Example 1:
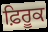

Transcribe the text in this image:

ਫ਼ਿਰੂਕ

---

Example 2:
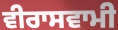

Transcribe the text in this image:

ਵੀਰਾਸਵਾਮੀ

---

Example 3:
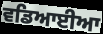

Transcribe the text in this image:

ਵਡਿਆਈਆ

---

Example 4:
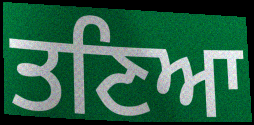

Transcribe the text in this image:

ਤਣਿਆ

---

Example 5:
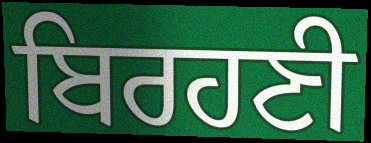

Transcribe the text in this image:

ਬਿਰਹਣੀ